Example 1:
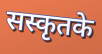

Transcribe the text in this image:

सस्कृतके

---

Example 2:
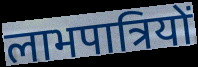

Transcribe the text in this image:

लाभपात्रियों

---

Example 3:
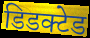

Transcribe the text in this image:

डिडक्टेड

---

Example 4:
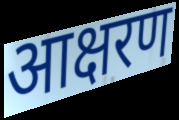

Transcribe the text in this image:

आक्षरण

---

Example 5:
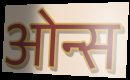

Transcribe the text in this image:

ओन्स